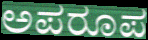
ಅಪರೂಪ